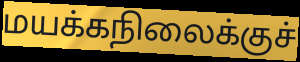
மயக்கநிலைக்குச்